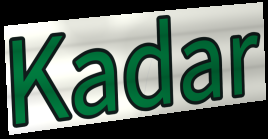
Kadar